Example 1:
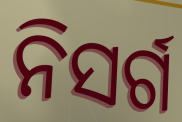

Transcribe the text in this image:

ନିସର୍ଗ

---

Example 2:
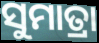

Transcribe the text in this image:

ସୁମାତ୍ରା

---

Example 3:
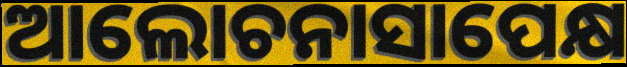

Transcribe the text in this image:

ଆଲୋଚନାସାପେକ୍ଷ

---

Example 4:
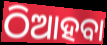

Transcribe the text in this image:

ଠିଆହବା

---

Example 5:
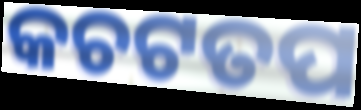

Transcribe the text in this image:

କଚଟତପ